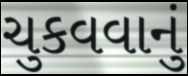
ચુકવવાનું